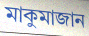
মাকুমাজান